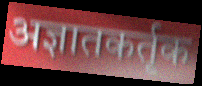
अज्ञातकर्तृक